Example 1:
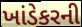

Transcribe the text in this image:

ખાંડેકરની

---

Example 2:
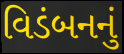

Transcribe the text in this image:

વિડંબનનું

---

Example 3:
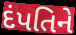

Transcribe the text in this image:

દંપતિને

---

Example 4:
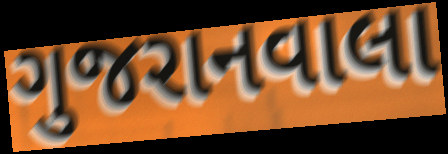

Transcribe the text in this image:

ગુજરાનવાલા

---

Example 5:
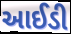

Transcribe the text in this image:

આઈડી